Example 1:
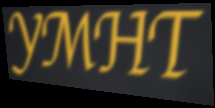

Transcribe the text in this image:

YMHT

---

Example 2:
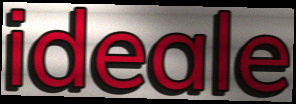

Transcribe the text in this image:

ideale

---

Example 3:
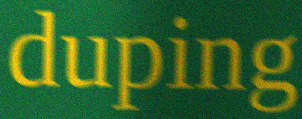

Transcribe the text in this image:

duping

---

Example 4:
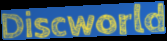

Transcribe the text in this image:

Discworld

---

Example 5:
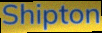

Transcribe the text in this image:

Shipton